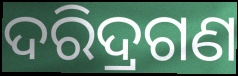
ଦରିଦ୍ରଗଣ